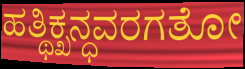
ಹತ್ಥಿಕ್ಖನ್ಧವರಗತೋ